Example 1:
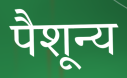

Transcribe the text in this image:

पैशून्य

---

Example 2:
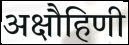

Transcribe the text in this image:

अक्षौहिणी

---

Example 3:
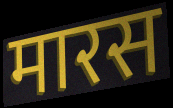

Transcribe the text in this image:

मारस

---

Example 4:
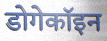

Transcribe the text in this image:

डोगेकॉइन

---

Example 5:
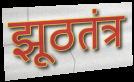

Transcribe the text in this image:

झूठतंत्र